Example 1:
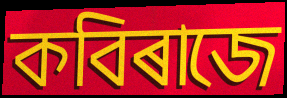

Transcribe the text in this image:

কবিৰাজে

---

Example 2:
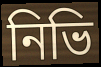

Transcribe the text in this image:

নিভি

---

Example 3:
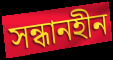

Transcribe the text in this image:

সন্ধানহীন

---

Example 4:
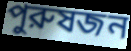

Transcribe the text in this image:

পুৰুষজন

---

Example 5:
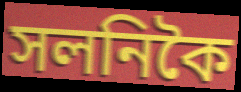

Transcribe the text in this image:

সলনিকৈ